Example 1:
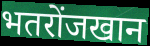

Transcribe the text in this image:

भतरोंजखान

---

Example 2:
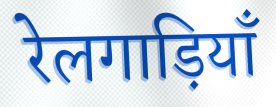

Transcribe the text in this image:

रेलगाड़ियाँ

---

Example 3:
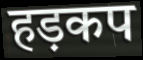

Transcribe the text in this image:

हड़कप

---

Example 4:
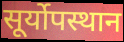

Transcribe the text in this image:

सूर्योपस्थान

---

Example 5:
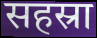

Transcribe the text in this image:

सहस्रा